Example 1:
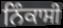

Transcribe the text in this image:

ਨਿੰਕਾਸੀ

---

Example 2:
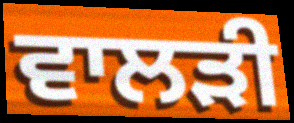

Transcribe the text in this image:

ਵਾਲੜੀ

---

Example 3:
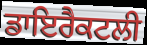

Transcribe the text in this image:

ਡਾਇਰੈਕਟਲੀ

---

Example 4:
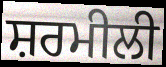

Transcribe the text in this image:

ਸ਼ਰਮੀਲੀ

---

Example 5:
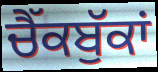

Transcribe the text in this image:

ਚੈੱਕਬੁੱਕਾਂ